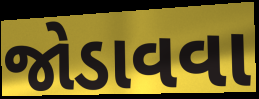
જોડાવવા